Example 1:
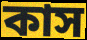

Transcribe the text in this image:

কাস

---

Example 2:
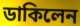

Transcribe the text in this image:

ডাকিলেন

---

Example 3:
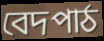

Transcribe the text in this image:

বেদপাঠ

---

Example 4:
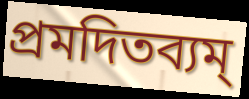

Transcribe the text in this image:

প্রমদিতব্যম্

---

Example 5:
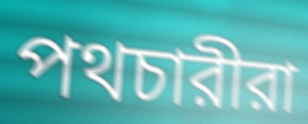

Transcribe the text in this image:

পথচারীরা